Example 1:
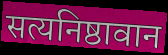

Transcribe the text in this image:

सत्यनिष्ठावान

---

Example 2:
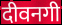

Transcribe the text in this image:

दीवनगी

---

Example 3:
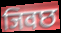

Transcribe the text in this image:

जिवछ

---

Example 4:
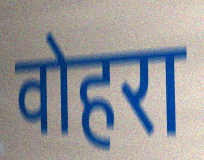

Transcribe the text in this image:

वोहरा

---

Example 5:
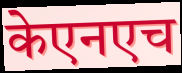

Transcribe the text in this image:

केएनएच